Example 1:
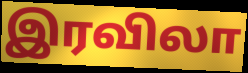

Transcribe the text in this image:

இரவிலா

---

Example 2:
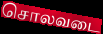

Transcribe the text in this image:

சொலவடை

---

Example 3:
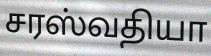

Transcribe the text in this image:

சரஸ்வதியா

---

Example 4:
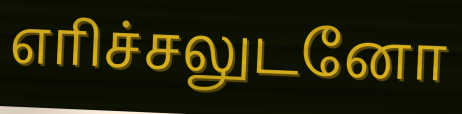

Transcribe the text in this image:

எரிச்சலுடனோ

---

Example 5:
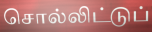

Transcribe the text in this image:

சொல்லிட்டுப்